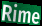
Rime